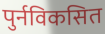
पुर्नविकसित